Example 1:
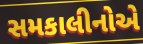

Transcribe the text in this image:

સમકાલીનોએ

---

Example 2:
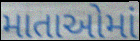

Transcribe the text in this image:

માતાઓમાં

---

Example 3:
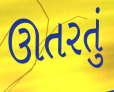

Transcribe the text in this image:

ઊતરતું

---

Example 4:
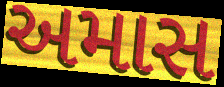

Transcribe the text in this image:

અમાસ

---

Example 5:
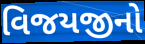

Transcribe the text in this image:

વિજયજીનો